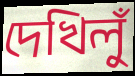
দেখিলুঁ